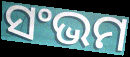
ସଂଭମ